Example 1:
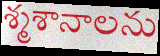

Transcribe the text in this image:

శ్మశానాలను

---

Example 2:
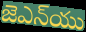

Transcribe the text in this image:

జెఎన్‌యు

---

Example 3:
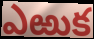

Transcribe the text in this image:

ఎఱుక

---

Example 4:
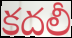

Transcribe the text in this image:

కదలీ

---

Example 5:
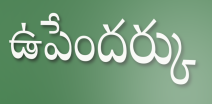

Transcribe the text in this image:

ఉపేందర్కు